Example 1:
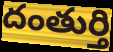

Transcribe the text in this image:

దంతుర్తి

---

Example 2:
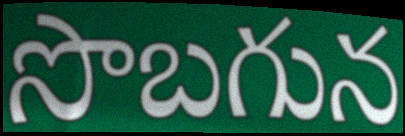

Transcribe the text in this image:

సొబగున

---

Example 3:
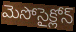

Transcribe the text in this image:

మెసోసైక్లోన్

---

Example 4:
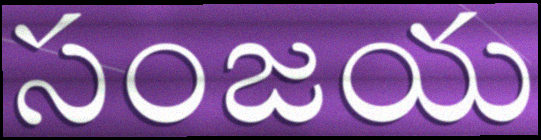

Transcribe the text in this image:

సంజయ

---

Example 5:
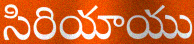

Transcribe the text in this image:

సిరియాయు